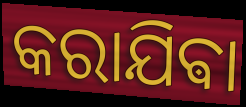
କରାଯିଵା